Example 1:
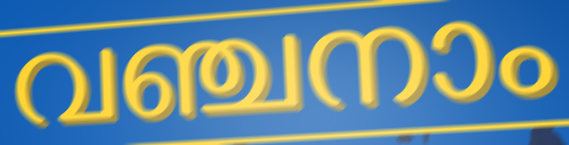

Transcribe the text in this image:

വഞ്ചനാം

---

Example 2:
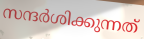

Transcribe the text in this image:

സന്ദർശിക്കുന്നത്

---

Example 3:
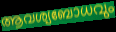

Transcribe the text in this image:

ആവശ്യബോധവും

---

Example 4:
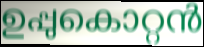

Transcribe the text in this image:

ഉപ്പുകൊറ്റൻ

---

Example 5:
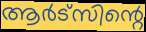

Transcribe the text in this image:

ആർട്സിന്റെ